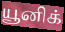
யூனிக்